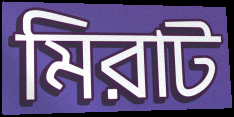
মিরাট